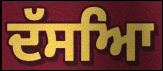
ਦੱਸਆਿ